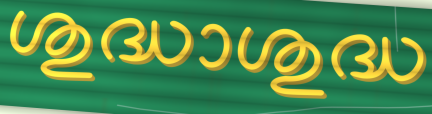
ശുദ്ധാശുദ്ധ